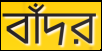
বাঁদর